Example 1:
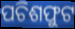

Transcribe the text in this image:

ପଚିଶଫୁଟ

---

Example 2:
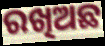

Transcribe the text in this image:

ରଖିଅଛ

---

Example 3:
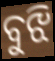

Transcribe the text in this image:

ବୁଝି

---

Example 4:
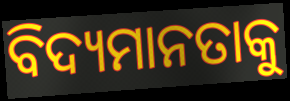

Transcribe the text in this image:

ବିଦ୍ୟମାନତାକୁ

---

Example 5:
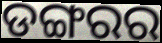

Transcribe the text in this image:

ଡଙ୍ଗରର